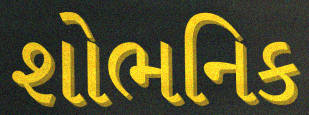
શોભનિક